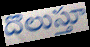
దొలుస్తూ